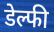
डेल्फी